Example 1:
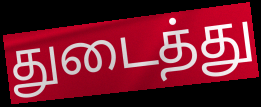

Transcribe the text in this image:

துடைத்து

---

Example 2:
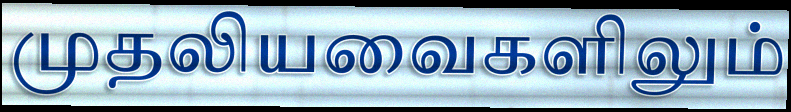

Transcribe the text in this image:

முதலியவைகளிலும்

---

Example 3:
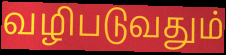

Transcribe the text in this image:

வழிபடுவதும்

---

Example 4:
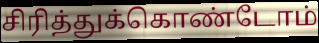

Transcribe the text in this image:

சிரித்துக்கொண்டோம்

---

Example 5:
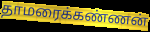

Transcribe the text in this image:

தாமரைக்கண்ணன்